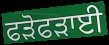
ਫੜੋਫੜਾਈ